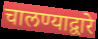
चालण्याद्वारे